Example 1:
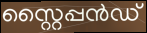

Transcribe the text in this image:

സ്റ്റൈപ്പൻഡ്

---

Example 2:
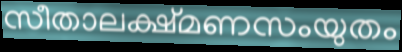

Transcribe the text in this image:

സീതാലക്ഷ്മണസംയുതം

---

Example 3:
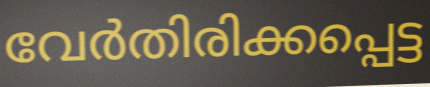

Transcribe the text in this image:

വേർതിരിക്കപ്പെട്ട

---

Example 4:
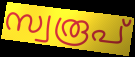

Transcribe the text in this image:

സ്വരൂപ്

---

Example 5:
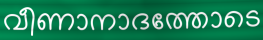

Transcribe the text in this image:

വീണാനാദത്തോടെ